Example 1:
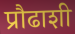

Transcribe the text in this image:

प्रौढाशी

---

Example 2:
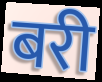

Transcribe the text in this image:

बरी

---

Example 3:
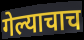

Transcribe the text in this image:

गेल्याचाच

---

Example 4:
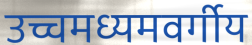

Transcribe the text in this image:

उच्चमध्यमवर्गीय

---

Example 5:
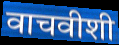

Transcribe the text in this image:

वाचवीशी